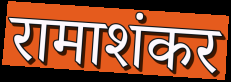
रामाशंकर